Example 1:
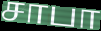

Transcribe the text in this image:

சாபா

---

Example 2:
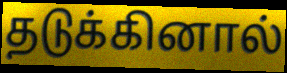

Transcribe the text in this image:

தடுக்கினால்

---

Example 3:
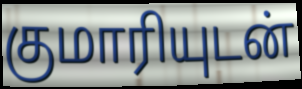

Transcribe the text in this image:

குமாரியுடன்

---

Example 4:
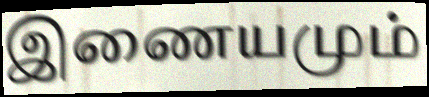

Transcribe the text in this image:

இணையமும்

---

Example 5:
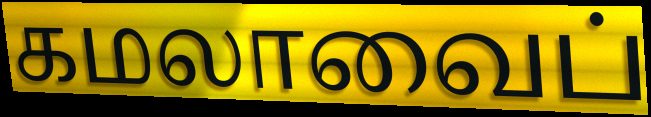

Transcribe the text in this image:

கமலாவைப்